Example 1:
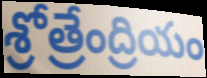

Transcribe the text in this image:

శ్రోత్రేంద్రియం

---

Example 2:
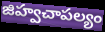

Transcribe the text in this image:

జిహ్వచాపల్యం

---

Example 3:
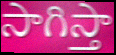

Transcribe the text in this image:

సాగిస్తా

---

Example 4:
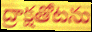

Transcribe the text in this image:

ద్రాక్షతోటను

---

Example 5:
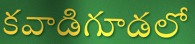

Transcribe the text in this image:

కవాడిగూడలో